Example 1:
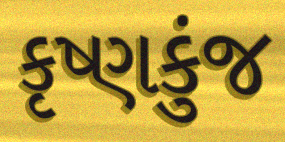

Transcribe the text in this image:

કૃષ્ણકુંજ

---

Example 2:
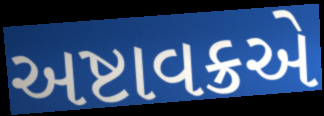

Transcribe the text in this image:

અષ્ટાવક્રએ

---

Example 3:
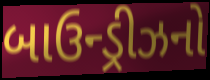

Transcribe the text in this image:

બાઉન્ડ્રીઝનો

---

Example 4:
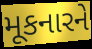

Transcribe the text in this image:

મૂકનારને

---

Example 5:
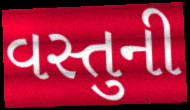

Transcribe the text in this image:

વસ્તુની